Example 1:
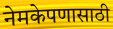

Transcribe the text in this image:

नेमकेपणासाठी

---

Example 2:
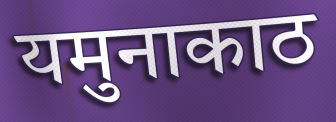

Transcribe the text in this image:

यमुनाकाठ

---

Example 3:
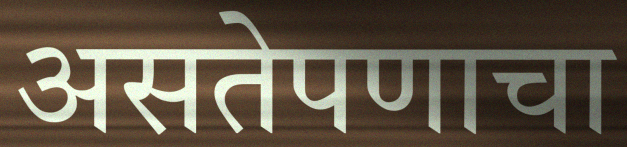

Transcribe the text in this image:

असतेपणाचा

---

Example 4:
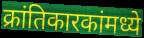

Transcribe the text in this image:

क्रांतिकारकांमध्ये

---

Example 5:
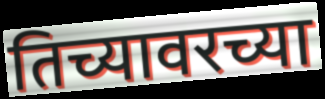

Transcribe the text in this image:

तिच्यावरच्या